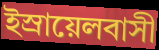
ইস্রায়েলবাসী